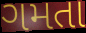
ગમતા